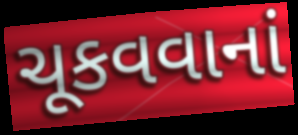
ચૂકવવાનાં